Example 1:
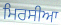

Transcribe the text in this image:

ਮਿਰਸੀਆ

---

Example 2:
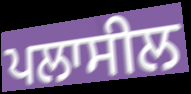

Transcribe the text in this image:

ਪਲਾਸੀਲ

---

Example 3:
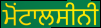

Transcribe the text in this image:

ਮੋਂਟਾਲਸੀਨੀ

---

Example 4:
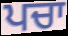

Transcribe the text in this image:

ਪਚਾ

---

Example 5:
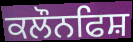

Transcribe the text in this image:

ਕਲੌਨਫਿਸ਼